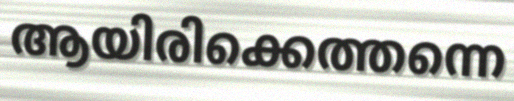
ആയിരിക്കെത്തന്നെ